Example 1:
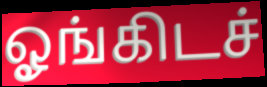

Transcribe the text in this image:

ஓங்கிடச்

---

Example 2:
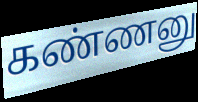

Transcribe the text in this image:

கண்ணனு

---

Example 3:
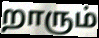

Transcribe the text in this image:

றாரும்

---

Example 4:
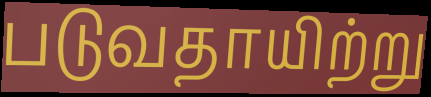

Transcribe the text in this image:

படுவதாயிற்று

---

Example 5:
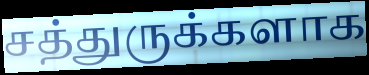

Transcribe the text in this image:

சத்துருக்களாக